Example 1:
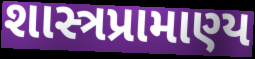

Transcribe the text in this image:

શાસ્ત્રપ્રામાણ્ય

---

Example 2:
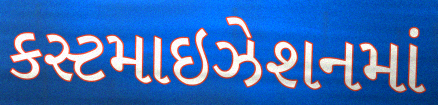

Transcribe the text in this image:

કસ્ટમાઇઝેશનમાં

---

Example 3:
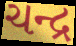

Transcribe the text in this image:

ચન્દ્ર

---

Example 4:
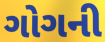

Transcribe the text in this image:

ગોગની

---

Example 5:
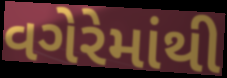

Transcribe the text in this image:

વગેરેમાંથી